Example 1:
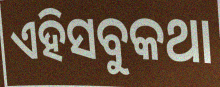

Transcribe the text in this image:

ଏହିସବୁକଥା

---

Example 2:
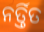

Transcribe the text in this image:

ନର୍ତ୍ତିତ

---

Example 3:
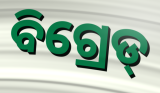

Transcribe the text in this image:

ବିଗ୍ରେଡ୍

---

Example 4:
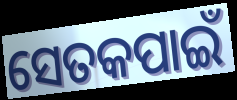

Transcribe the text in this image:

ସେତକପାଇଁ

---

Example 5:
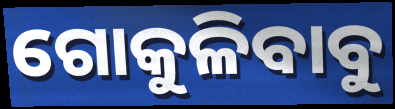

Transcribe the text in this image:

ଗୋକୁଳିବାବୁ